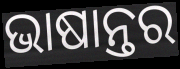
ଭାଷାନ୍ତର